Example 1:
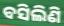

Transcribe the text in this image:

ବସିଲିଣି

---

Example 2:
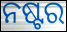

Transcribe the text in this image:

ନଷ୍ଟର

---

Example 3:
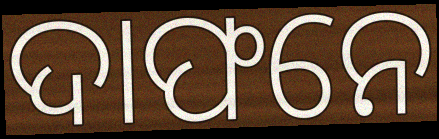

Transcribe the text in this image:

ଦାଫନେ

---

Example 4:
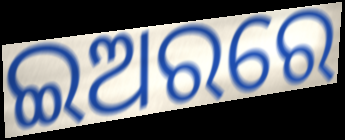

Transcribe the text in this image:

ଇଅରରେ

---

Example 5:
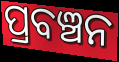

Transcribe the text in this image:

ପ୍ରବଞ୍ଚନ